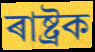
ৰাষ্ট্ৰক